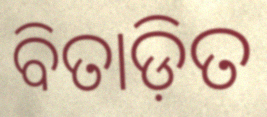
ବିତାଡ଼ିତ